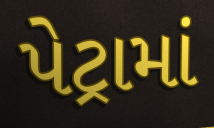
પેટ્રામાં